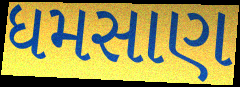
ધમસાણ